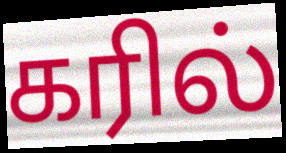
கரில்